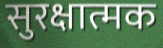
सुरक्षात्मक